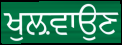
ਖੁਲ਼ਵਾਉਣ